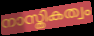
നാസ്തികത്വം